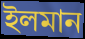
ইলমান